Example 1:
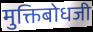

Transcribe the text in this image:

मुक्तिबोधजी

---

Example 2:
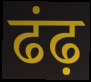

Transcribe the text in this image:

ढंढ़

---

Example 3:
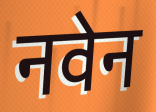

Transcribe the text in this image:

नवेन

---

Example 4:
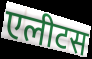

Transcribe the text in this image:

एलीटस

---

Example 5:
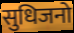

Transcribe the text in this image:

सुधिजनो